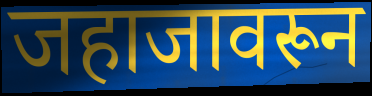
जहाजावरून